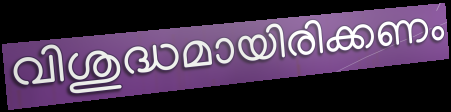
വിശുദ്ധമായിരിക്കണം